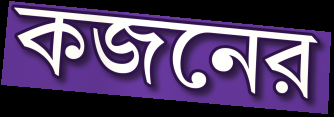
কজনের